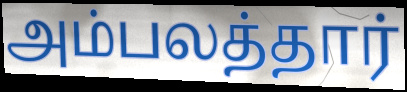
அம்பலத்தார்